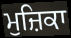
ਮੁਜ਼ਿਕਾ